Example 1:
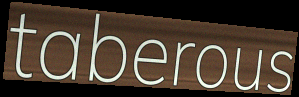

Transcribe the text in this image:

taberous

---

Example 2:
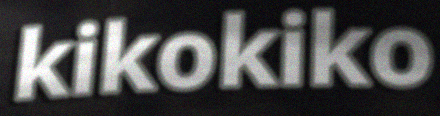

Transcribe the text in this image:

kikokiko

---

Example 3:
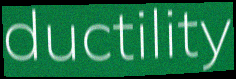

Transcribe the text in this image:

ductility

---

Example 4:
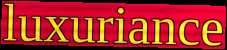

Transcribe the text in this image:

luxuriance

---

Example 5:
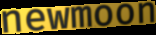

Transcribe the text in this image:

newmoon